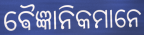
ଵୈଜ୍ଞାନିକମାନେ